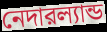
নেদারল্যান্ড